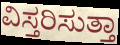
ವಿಸ್ತರಿಸುತ್ತಾ